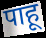
पाहू